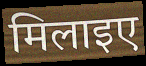
मिलाइए